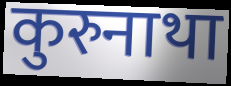
कुरुनाथा